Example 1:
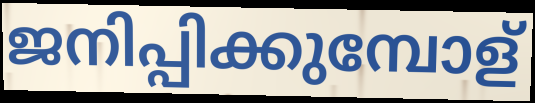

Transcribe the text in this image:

ജനിപ്പിക്കുമ്പോള്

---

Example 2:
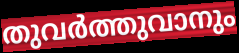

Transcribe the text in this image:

തുവർത്തുവാനും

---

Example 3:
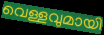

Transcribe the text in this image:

വെള്ളവുമായി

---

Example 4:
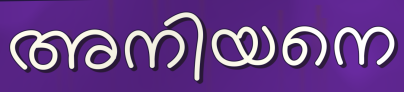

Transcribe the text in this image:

അനിയനെ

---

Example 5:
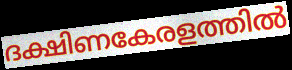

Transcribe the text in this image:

ദക്ഷിണകേരളത്തിൽ